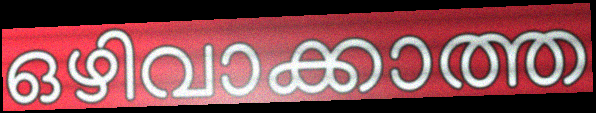
ഒഴിവാക്കാത്ത